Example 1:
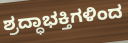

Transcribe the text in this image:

ಶ್ರದ್ಧಾಭಕ್ತಿಗಳಿಂದ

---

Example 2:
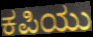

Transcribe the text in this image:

ಕಪಿಯು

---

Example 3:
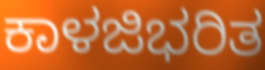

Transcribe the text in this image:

ಕಾಳಜಿಭರಿತ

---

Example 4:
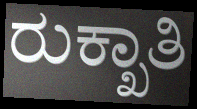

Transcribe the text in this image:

ರುಕ್ಖಾತಿ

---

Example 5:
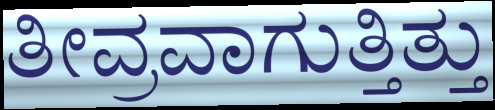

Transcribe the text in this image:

ತೀವ್ರವಾಗುತ್ತಿತ್ತು